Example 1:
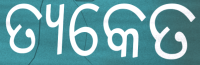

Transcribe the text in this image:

ତ୍ୟକେତ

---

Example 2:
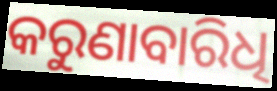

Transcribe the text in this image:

କରୁଣାବାରିଧି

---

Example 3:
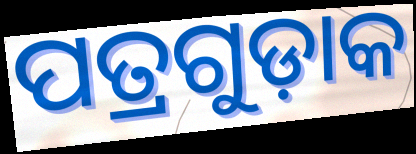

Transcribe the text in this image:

ପତ୍ରଗୁଡ଼ାକ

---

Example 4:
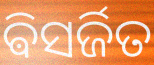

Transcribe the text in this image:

ଵିସର୍ଜିତ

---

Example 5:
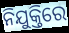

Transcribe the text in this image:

ନିଯୁକ୍ତିରେ